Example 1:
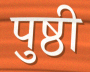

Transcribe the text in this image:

पुष्ठी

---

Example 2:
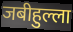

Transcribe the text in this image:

जबीहुल्ला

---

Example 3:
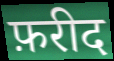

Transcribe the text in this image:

फ़रीद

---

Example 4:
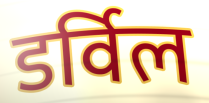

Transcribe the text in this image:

डर्विल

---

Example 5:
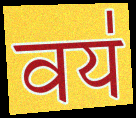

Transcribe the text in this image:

वय॑